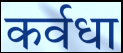
कर्वधा